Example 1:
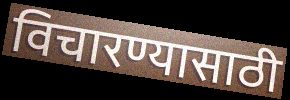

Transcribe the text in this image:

विचारण्यासाठी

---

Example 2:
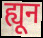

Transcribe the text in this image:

ह्यून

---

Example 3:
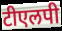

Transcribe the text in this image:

टीएलपी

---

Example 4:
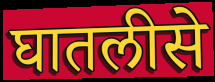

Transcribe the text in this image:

घातलीसे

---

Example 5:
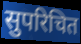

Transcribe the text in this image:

सुपरिचित